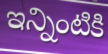
ఇన్నింటికి